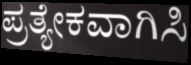
ಪ್ರತ್ಯೇಕವಾಗಿಸಿ